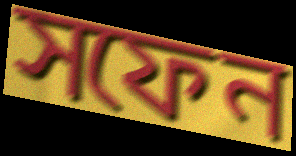
সফেন